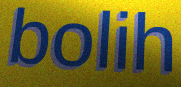
bolih